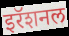
इरॅशनल